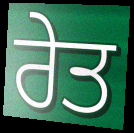
ਰੇਤ